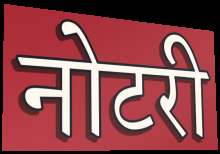
नोटरी